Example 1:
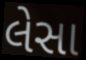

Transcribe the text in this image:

લેસા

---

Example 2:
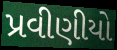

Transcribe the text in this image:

પ્રવીણીયો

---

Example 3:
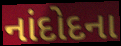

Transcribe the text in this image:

નાંદોદના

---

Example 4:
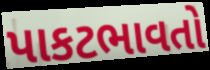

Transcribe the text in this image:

પાકટભાવતો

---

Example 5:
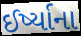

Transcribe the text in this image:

ઈર્ષ્યાના